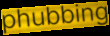
phubbing